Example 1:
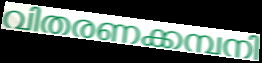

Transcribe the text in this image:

വിതരണക്കമ്പനി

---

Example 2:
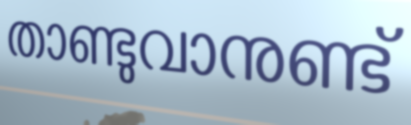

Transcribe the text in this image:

താണ്ടുവാനുണ്ട്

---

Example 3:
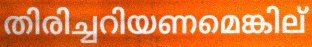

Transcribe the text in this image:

തിരിച്ചറിയണമെങ്കില്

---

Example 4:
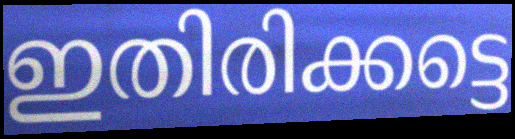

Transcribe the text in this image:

ഇതിരിക്കട്ടെ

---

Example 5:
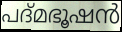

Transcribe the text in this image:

പദ്മഭൂഷൻ